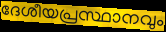
ദേശീയപ്രസ്ഥാനവും